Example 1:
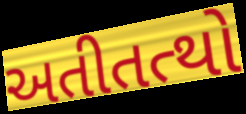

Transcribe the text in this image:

અતીતત્થો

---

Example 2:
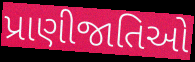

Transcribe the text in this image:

પ્રાણીજાતિઓ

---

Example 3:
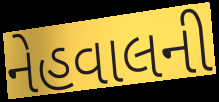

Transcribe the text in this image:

નેહવાલની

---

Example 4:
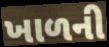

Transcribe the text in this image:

ખાળની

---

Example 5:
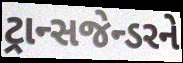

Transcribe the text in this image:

ટ્રાન્સજેન્ડરને